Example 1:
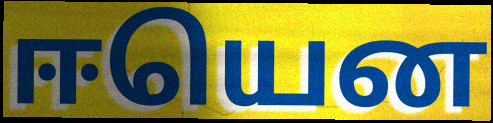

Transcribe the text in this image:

ஈயென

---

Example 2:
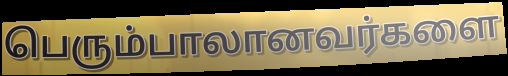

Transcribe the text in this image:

பெரும்பாலானவர்களை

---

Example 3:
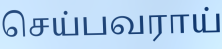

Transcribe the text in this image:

செய்பவராய்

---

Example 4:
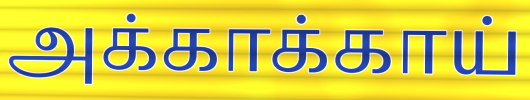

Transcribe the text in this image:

அக்காக்காய்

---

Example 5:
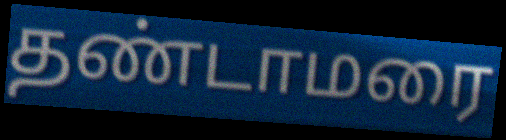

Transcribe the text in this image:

தண்டாமரை